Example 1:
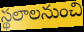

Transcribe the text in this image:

స్థలాలనుంచి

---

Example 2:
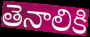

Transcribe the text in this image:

తెనాలికి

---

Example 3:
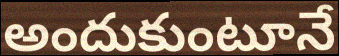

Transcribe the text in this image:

అందుకుంటూనే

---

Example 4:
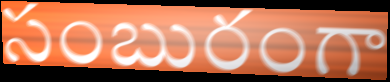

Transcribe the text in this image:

సంబురంగా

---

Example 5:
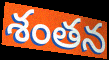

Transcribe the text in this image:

శంతన